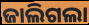
ଜାଲିଗଲା